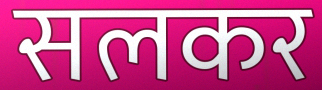
सलकर